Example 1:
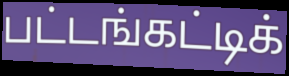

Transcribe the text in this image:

பட்டங்கட்டிக்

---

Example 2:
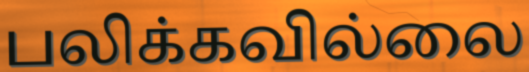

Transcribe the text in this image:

பலிக்கவில்லை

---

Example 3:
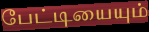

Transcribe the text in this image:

பேட்டியையும்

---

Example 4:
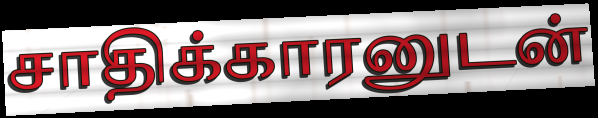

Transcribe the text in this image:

சாதிக்காரனுடன்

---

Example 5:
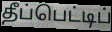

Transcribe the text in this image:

தீப்பெட்டிப்